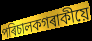
পৰিচালকগৰাকীয়ে